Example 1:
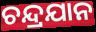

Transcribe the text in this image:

ଚନ୍ଦ୍ରଯାନ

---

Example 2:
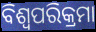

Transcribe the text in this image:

ବିଶ୍ୱପରିକ୍ରମା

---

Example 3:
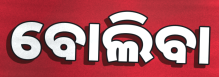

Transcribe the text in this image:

ବୋଲିବା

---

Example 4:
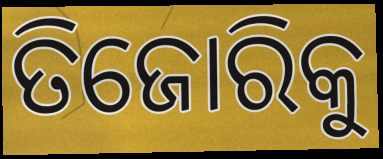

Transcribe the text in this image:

ତିଜୋରିକୁ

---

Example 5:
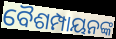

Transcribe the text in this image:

ବୈଶମ୍ପାୟନଙ୍କ